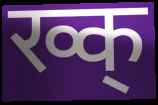
ख्क्